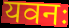
यवनः